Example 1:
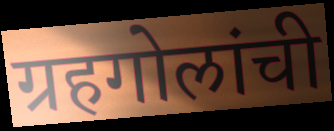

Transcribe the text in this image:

ग्रहगोलांची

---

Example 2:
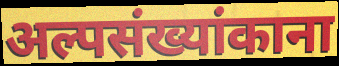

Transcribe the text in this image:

अल्पसंख्यांकाना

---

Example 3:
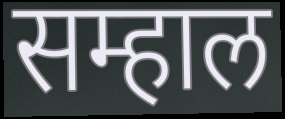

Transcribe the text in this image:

सम्हाल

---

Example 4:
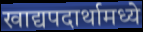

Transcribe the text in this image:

खाद्यपदार्थामध्ये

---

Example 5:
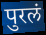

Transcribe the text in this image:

पुरलं